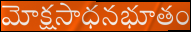
మోక్షసాధనభూతం